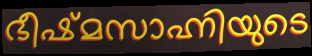
ഭീഷ്മസാഹ്നിയുടെ